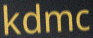
kdmc